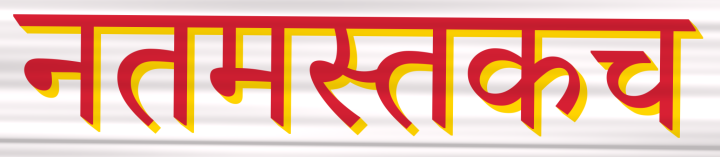
नतमस्तकच